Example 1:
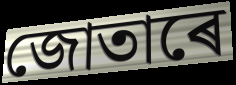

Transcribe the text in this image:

জোতাৰে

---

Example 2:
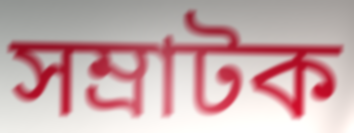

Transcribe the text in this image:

সম্ৰাটক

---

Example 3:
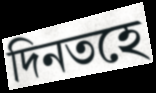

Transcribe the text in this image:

দিনতহে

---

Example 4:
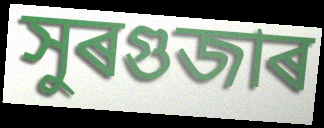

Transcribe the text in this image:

সুৰগুজাৰ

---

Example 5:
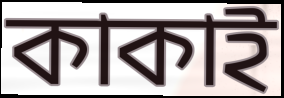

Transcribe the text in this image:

কাকাই